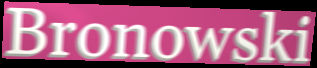
Bronowski